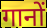
गानों